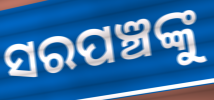
ସରପଞ୍ଚଙ୍କୁ